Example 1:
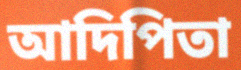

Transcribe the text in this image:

আদিপিতা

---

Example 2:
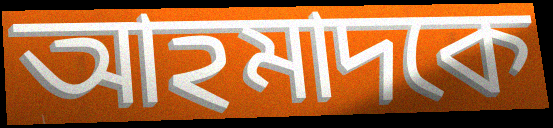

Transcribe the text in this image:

আহমাদকে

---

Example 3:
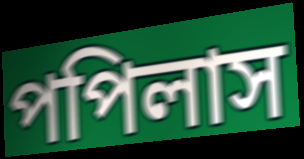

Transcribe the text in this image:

পপিলাস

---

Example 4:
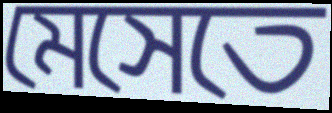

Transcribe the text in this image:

মেসেতে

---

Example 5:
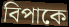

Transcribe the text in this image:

বিপাকে